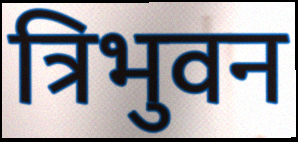
त्रिभुवन